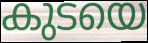
കുടയെ